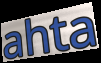
ahta